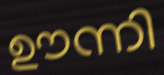
ഊന്നി